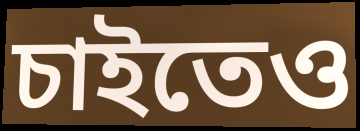
চাইতেও